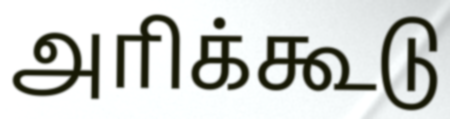
அரிக்கூடு